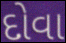
દોવા